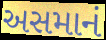
અસમાનં